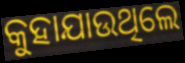
କୁହାଯାଉଥିଲେ